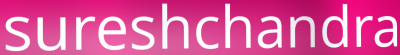
sureshchandra